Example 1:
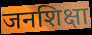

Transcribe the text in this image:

जनशिक्षा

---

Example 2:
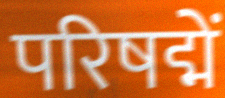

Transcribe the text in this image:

परिषद्में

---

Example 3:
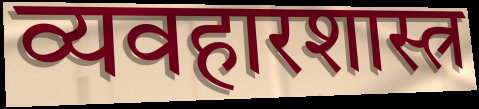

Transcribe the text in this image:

व्यवहारशास्त्र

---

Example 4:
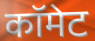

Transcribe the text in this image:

कॉमेट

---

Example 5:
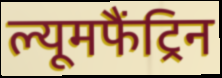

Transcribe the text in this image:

ल्यूमफैंट्रिन